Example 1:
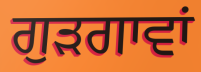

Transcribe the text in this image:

ਗੁੜਗਾਵਾਂ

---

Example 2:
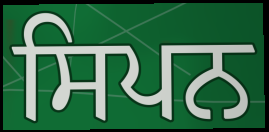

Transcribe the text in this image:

ਸਿਪਨ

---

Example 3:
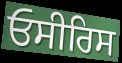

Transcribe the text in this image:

ਓਸੀਰਿਸ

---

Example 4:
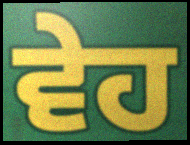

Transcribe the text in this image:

ਵੇਹ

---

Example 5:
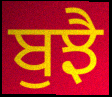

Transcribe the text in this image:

ਬੁਝੈ